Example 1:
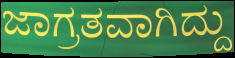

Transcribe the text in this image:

ಜಾಗ್ರತವಾಗಿದ್ದು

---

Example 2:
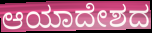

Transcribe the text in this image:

ಆಯಾದೇಶದ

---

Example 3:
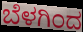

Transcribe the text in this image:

ಬೆಳಗಿಂದ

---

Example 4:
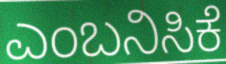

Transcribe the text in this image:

ಎಂಬನಿಸಿಕೆ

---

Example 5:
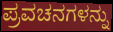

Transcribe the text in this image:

ಪ್ರವಚನಗಳನ್ನು